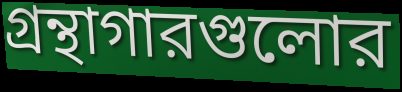
গ্রন্থাগারগুলোর